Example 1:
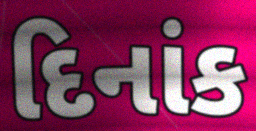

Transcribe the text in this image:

દિનાંક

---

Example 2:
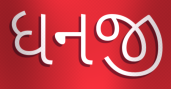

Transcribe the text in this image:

ધનજી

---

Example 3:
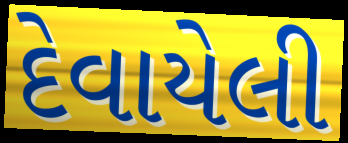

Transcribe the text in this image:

દેવાયેલી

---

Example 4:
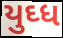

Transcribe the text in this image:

યુઘ્ધ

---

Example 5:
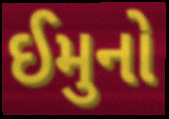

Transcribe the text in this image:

ઈમુનો